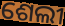
ଶେଲୀ